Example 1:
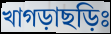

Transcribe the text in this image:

খাগড়াছড়িঃ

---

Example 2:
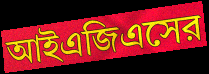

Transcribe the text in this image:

আইএজিএসের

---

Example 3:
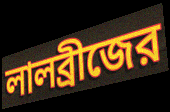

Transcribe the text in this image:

লালব্রীজের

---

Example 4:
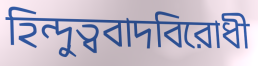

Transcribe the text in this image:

হিন্দুত্ববাদবিরোধী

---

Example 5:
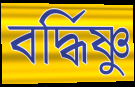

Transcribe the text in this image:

বর্দ্ধিষ্ণু